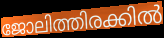
ജോലിത്തിരക്കിൽ